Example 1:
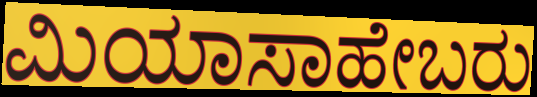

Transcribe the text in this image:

ಮಿಯಾಸಾಹೇಬರು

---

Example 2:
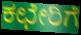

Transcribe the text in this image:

ಕಛೇರಿಗೆ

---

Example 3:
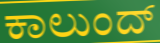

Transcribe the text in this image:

ಕಾಲುಂದ್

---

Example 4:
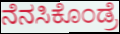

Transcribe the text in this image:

ನೆನಸಿಕೊಂಡ್ರೆ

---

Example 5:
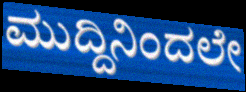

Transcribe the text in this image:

ಮುದ್ದಿನಿಂದಲೇ